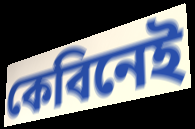
কেবিনেই